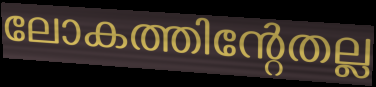
ലോകത്തിന്റേതല്ല